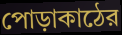
পোড়াকাঠের